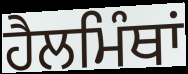
ਹੈਲਮਿੰਥਾਂ